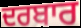
ਦਰਬਾਰ